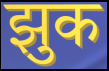
झुक